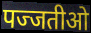
पज्जतीओ